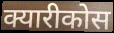
क्यारीकोस